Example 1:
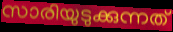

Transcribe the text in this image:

സാരിയുടുക്കുന്നത്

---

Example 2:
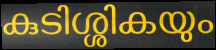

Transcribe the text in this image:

കുടിശ്ശികയും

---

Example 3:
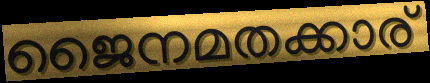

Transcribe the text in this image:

ജൈനമതക്കാര്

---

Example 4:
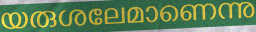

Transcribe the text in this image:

യരുശലേമാണെന്നു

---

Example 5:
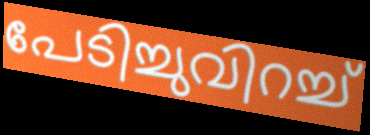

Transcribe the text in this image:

പേടിച്ചുവിറച്ച്